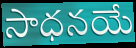
సాధనయే